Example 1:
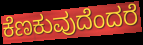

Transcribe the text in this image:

ಕೆಣಕುವುದೆಂದರೆ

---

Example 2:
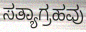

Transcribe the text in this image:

ಸತ್ಯಾಗ್ರಹವು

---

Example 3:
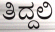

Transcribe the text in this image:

ತಿದ್ದಲಿ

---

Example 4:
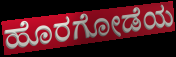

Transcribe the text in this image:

ಹೊರಗೋಡೆಯ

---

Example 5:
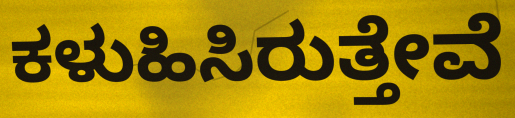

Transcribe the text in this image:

ಕಳುಹಿಸಿರುತ್ತೇವೆ